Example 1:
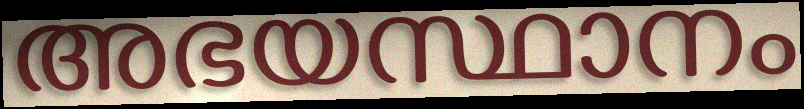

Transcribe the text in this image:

അഭയസ്ഥാനം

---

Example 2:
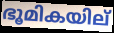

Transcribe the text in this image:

ഭൂമികയില്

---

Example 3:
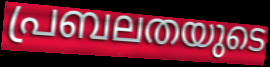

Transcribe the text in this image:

പ്രബലതയുടെ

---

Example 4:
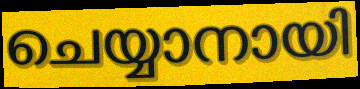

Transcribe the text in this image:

ചെയ്യാനായി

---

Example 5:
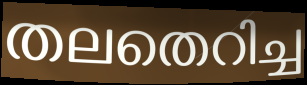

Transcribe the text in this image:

തലതെറിച്ച